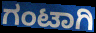
ಗಂಟಾಗಿ